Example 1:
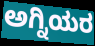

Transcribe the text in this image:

ಅಗ್ನಿಯರ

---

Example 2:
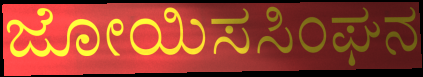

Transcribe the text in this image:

ಜೋಯಿಸಸಿಂಘನ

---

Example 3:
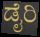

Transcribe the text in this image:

ಡೈರಿ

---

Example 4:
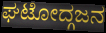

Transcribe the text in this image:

ಘಟೋದ್ಗಜನ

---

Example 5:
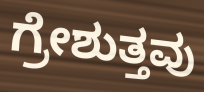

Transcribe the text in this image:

ಗ್ರೇಶುತ್ತವು